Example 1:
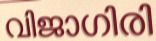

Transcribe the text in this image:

വിജാഗിരി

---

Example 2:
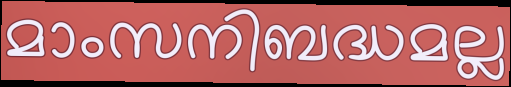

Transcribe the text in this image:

മാംസനിബദ്ധമല്ല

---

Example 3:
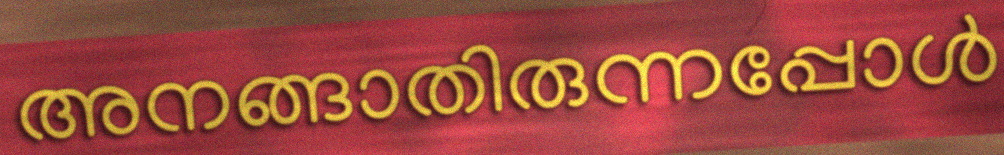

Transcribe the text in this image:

അനങ്ങാതിരുന്നപ്പോൾ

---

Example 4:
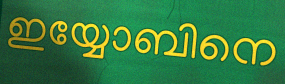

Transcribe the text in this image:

ഇയ്യോബിനെ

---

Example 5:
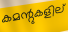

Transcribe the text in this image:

കമന്റുകളില്